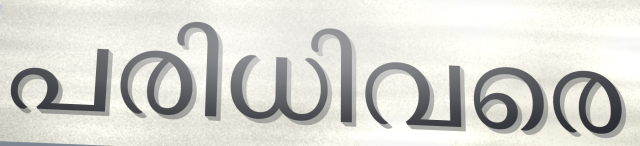
പരിധിവരെ